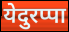
येदुरप्पा